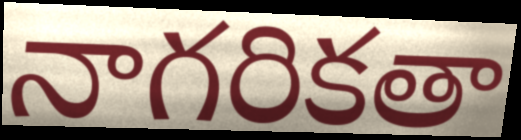
నాగరికతా